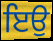
ਇਉ